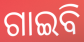
ଗାଇବି